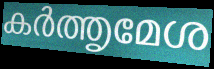
കർത്തൃമേശ